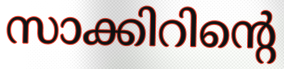
സാക്കിറിന്റെ